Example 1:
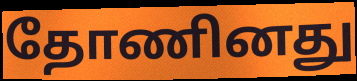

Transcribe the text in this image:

தோணினது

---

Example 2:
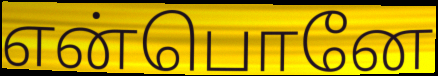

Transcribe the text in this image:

என்பொனே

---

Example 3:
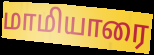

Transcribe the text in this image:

மாமியாரை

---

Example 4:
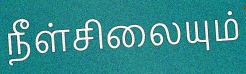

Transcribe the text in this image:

நீள்சிலையும்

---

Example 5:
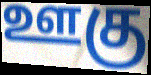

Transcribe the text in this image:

ஊகு